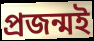
প্ৰজন্মই